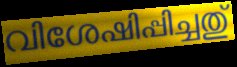
വിശേഷിപ്പിച്ചതു്